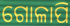
ଗୋଳାପି